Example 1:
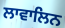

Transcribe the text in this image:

ਲਾਵਾਲਿਨ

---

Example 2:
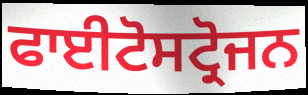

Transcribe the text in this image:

ਫਾਈਟੋਸਟ੍ਰੋਜਨ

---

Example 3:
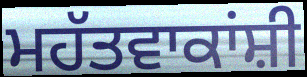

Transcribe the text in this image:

ਮਹੱਤਵਾਕਾਂਸ਼ੀ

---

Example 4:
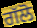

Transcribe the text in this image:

ਗੱਲੋ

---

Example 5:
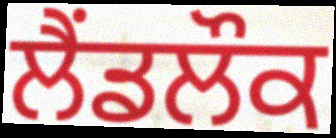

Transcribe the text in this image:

ਲੈਂਡਲੌਕ